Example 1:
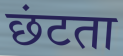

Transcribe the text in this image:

छंटता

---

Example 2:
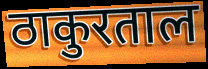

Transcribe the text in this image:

ठाकुरताल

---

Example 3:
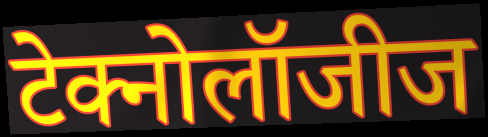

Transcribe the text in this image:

टेक्नोलॉजीज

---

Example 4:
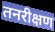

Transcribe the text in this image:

तनरीक्षण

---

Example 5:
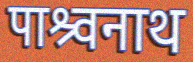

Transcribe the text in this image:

पाश्र्वनाथ